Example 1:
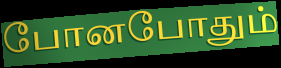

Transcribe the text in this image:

போனபோதும்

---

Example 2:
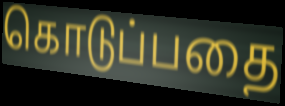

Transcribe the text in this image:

கொடுப்பதை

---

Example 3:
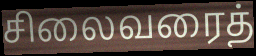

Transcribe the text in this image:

சிலைவரைத்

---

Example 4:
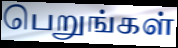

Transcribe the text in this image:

பெறுங்கள்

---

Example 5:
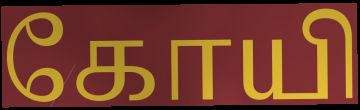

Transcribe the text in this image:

கோயி